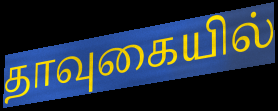
தாவுகையில்